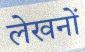
लेखनों